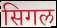
सिगल